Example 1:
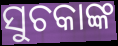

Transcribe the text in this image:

ସୁଚକାଙ୍କ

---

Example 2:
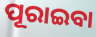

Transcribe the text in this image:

ପୂରାଇବା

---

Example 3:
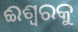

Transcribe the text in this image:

ଈଶ୍ୱରକୁ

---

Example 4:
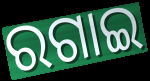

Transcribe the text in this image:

ରଗାଇ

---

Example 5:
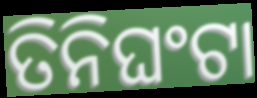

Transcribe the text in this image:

ତିନିଘଂଟା